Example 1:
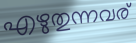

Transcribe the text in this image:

എഴുതുന്നവര്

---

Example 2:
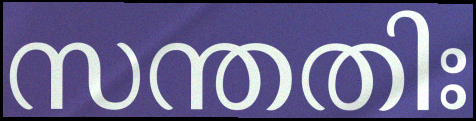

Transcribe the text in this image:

സന്തതിഃ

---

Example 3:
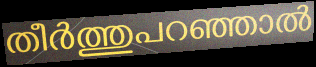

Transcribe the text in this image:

തീർത്തുപറഞ്ഞാൽ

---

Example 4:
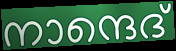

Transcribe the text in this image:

നാന്ദെദ്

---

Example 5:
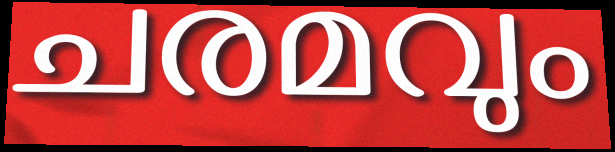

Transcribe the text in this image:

ചരമവും